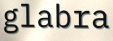
glabra